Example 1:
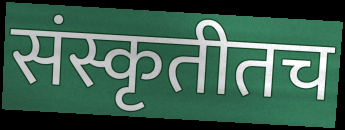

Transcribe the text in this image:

संस्कृतीतच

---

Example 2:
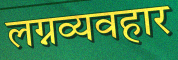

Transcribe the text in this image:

लग्नव्यवहार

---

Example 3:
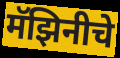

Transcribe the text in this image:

मॅझिनीचे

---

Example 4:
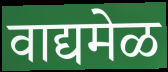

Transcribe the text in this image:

वाद्यमेळ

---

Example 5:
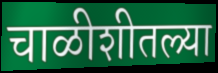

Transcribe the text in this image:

चाळीशीतल्या